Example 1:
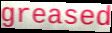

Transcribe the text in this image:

greased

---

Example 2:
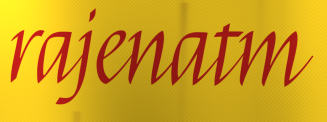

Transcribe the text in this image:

rajenatm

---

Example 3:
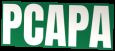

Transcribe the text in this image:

PCAPA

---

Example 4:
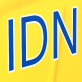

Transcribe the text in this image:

IDN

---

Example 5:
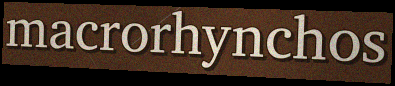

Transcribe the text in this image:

macrorhynchos